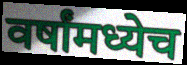
वर्षांमध्येच